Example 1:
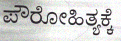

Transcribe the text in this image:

ಪೌರೋಹಿತ್ಯಕ್ಕೆ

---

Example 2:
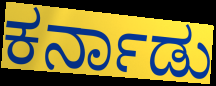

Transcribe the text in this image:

ಕರ್ನಾಡು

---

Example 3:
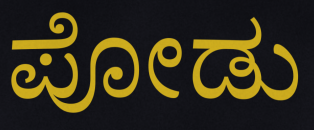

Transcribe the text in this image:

ಪೋಡು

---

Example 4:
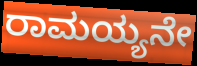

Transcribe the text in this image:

ರಾಮಯ್ಯನೇ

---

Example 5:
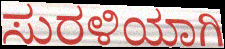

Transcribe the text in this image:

ಸುರಳಿಯಾಗಿ